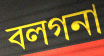
বলগনা